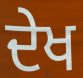
ਦੇਖ